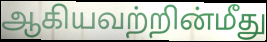
ஆகியவற்றின்மீது